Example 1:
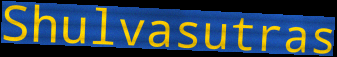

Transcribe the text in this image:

Shulvasutras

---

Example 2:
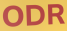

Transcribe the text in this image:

ODR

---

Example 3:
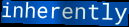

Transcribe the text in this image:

inherently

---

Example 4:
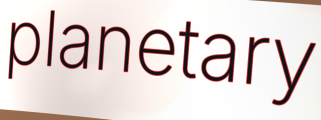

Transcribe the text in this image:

planetary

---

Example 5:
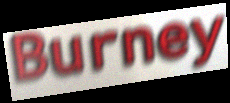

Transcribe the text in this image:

Burney